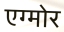
एग्मोर